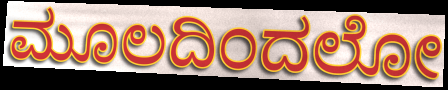
ಮೂಲದಿಂದಲೋ